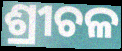
ଶ୍ରୀଚଳ